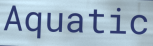
Aquatic